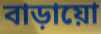
বাড়ায়ো